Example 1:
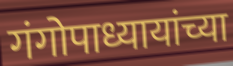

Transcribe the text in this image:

गंगोपाध्यायांच्या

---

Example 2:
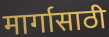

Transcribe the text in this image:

मार्गासाठी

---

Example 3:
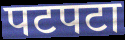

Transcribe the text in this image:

पटपटा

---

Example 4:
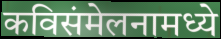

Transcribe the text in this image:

कविसंमेलनामध्ये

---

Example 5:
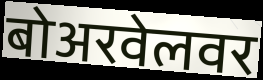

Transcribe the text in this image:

बोअरवेलवर